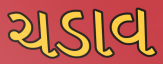
ચડાવ